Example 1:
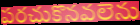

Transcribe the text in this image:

పరచుకొనవలెను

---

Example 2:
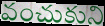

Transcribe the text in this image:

వంచుకుని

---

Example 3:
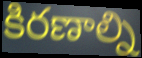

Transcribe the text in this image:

కిరణాల్ని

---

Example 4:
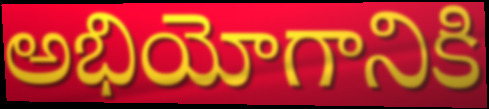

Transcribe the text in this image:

అభియోగానికి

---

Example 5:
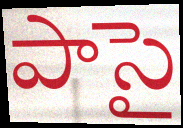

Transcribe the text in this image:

పాసై